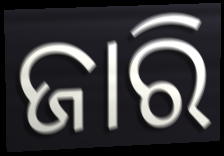
ଜାରି